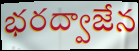
భరద్వాజేన